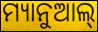
ମ୍ୟାନୁଆଲ୍